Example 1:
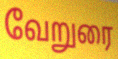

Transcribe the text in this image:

வேறுரை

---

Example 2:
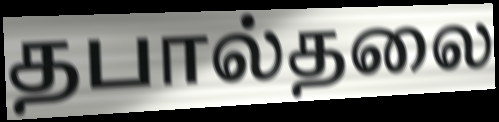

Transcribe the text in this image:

தபால்தலை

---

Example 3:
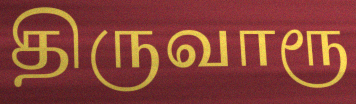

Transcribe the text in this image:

திருவாரூ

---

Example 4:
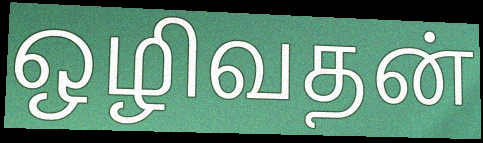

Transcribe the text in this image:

ஒழிவதன்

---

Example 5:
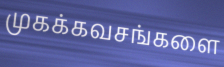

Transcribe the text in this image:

முகக்கவசங்களை